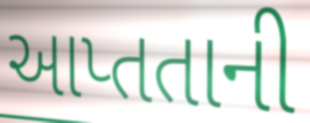
આપ્તતાની